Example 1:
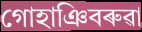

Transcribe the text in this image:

গোহাঞিবৰুৱা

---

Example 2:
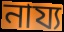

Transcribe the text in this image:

নায্য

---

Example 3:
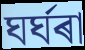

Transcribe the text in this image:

ঘৰ্ঘৰা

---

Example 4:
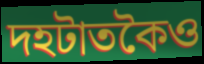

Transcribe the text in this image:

দহটাতকৈও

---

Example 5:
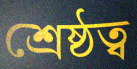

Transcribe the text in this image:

শ্ৰেষ্ঠত্ব